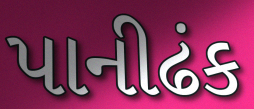
પાનીઢંક